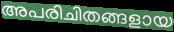
അപരിചിതങ്ങളായ